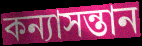
কন্যাসন্তান